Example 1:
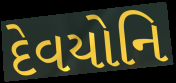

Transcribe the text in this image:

દેવયોનિ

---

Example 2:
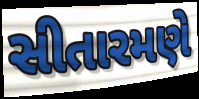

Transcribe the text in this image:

સીતારમણે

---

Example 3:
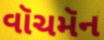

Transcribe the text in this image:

વૉચમૅન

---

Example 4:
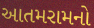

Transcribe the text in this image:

આતમરામનો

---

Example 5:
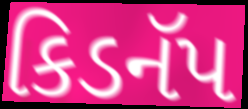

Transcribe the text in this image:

કિડનૅપ